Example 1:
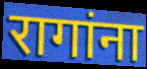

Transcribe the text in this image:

रागांना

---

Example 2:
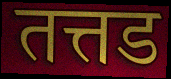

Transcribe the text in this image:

तत्तड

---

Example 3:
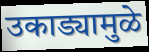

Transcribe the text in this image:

उकाड्यामुळे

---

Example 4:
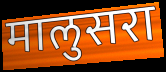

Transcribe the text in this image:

मालुसरा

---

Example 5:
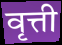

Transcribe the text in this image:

वृत्ती